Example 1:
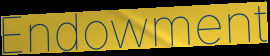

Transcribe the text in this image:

Endowment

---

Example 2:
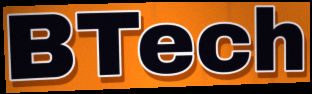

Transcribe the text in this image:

BTech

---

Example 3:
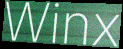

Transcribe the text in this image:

Winx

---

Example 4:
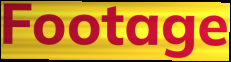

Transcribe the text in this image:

Footage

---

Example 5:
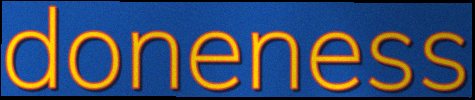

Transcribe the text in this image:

doneness